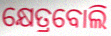
କ୍ଷେତ୍ରବୋଲି